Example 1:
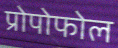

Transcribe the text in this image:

प्रोपोफोल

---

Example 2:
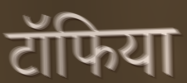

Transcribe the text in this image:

टॉफिया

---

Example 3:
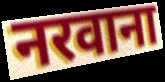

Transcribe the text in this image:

नरवाना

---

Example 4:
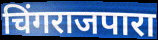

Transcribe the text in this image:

चिंगराजपारा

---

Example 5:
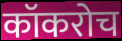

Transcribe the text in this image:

कॉकरोच